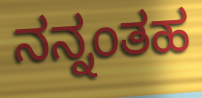
ನನ್ನಂತಹ